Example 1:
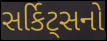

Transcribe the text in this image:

સર્કિટ્સનો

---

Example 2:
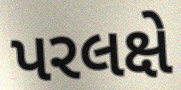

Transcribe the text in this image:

પરલક્ષે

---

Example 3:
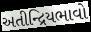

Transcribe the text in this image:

અતીન્દ્રિયભાવો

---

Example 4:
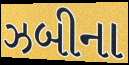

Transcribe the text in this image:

ઝબીના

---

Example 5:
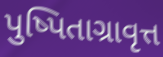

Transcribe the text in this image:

પુષ્પિતાગ્રાવૃત્ત